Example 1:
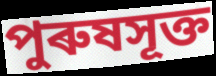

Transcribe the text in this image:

পুৰুষসূক্ত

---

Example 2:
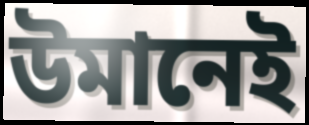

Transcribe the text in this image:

উমানেই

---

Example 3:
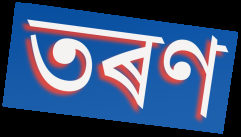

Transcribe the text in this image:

তৰণ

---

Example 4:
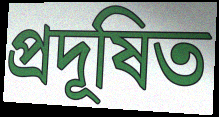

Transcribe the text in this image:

প্ৰদূষিত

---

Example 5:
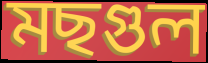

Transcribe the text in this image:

মছগুল